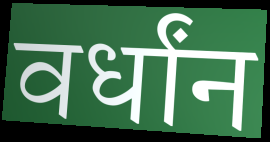
वर्धांन